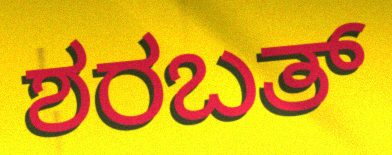
ಶರಬತ್